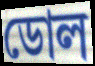
ডোল